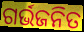
ଗର୍ଭଜନିତ